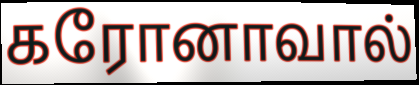
கரோனாவால்